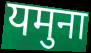
यमुना